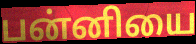
பன்னியை